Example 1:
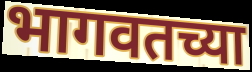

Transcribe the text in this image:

भागवतच्या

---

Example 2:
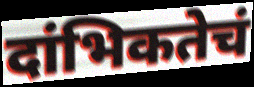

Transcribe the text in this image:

दांभिकतेचं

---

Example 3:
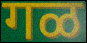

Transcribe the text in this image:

गळ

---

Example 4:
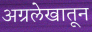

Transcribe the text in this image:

अग्रलेखातून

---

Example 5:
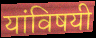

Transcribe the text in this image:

यांविषयी